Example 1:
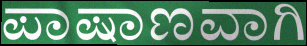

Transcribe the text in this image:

ಪಾಷಾಣವಾಗಿ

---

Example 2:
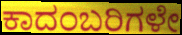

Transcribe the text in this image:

ಕಾದಂಬರಿಗಳೇ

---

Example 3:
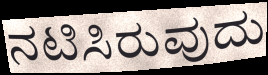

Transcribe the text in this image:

ನಟಿಸಿರುವುದು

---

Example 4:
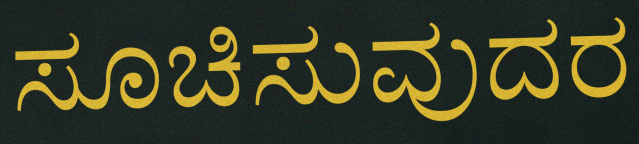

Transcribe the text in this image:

ಸೂಚಿಸುವುದರ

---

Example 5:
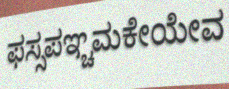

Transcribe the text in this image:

ಫಸ್ಸಪಞ್ಚಮಕೇಯೇವ